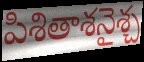
పిశితాశనైశ్చ